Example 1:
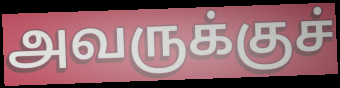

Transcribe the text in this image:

அவருக்குச்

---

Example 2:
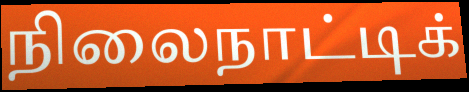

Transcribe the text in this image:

நிலைநாட்டிக்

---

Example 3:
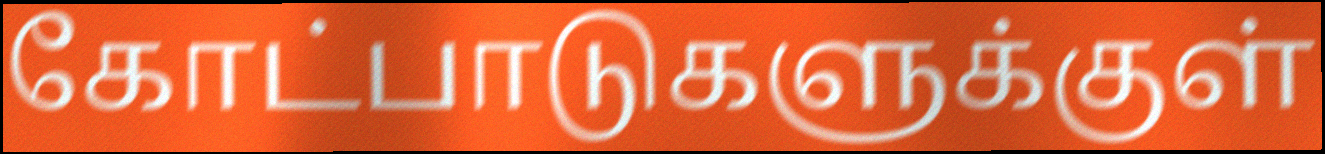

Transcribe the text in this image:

கோட்பாடுகளுக்குள்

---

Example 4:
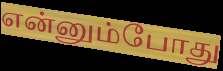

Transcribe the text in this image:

என்னும்போது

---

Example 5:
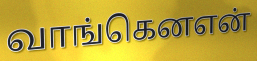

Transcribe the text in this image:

வாங்கெனஎன்